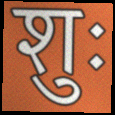
शुः